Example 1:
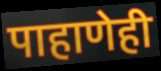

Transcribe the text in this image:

पाहाणेही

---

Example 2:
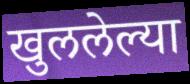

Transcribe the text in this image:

खुललेल्या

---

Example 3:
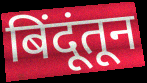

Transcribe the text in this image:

बिंदूंतून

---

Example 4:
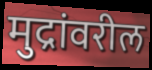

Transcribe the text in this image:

मुद्रांवरील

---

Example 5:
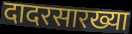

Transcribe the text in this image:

दादरसारख्या